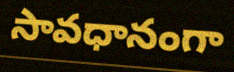
సావధానంగా